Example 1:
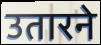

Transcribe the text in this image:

उतारने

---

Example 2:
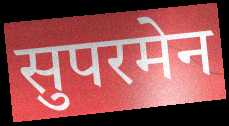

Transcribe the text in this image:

सुपरमेन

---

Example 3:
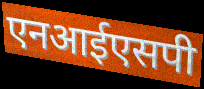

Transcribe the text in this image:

एनआईएसपी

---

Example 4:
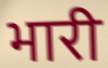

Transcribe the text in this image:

भारी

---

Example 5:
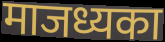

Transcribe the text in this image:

माजध्यका